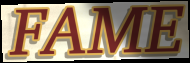
FAME